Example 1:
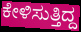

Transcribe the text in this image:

ಕೇಳಿಸುತ್ತಿದ್ದ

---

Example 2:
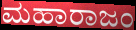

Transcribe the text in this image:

ಮಹಾರಾಜಂ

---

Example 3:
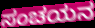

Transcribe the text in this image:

ಸಂಚಯನ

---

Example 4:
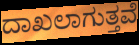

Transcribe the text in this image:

ದಾಖಲಾಗುತ್ತವೆ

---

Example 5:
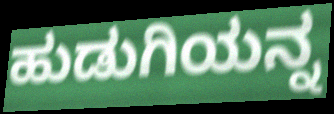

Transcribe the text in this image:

ಹುಡುಗಿಯನ್ನ